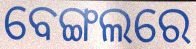
ବେଙ୍ଗଲରେ